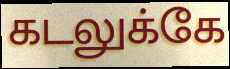
கடலுக்கே